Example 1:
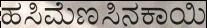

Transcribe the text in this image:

ಹಸಿಮೆಣಸಿನಕಾಯಿ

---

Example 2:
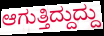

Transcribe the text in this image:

ಆಗುತ್ತಿದ್ದುದ್ದು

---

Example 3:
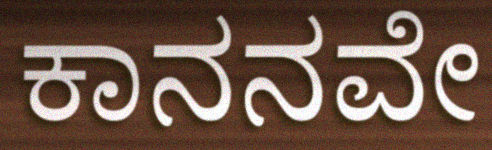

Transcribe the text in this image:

ಕಾನನವೇ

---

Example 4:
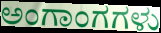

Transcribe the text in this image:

ಅಂಗಾಂಗಗಳು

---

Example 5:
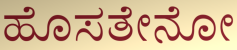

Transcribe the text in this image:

ಹೊಸತೇನೋ